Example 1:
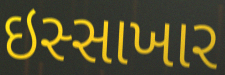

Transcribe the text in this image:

ઇસ્સાખાર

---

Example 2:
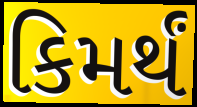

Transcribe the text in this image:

કિમર્થં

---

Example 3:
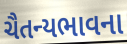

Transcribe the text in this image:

ચૈતન્યભાવના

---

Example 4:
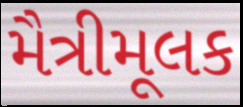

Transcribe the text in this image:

મૈત્રીમૂલક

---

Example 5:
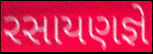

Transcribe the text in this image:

રસાયણજ્ઞે